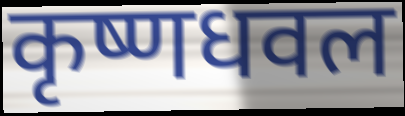
कृष्णधवल